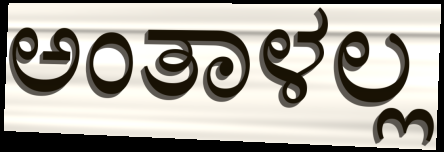
ಅಂತಾಳಲ್ಲ